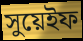
সুয়েইফ